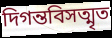
দিগন্তবিসত্মৃত